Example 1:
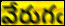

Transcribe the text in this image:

వేరుగఁ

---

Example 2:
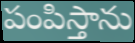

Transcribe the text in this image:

పంపిస్తాను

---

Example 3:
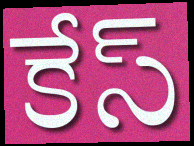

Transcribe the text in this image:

కేస్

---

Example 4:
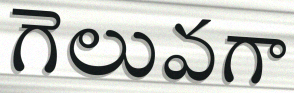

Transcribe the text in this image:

గెలువగా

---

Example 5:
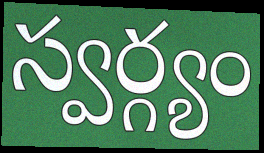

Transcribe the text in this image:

స్వర్గ్యం